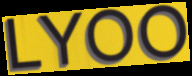
LYOO